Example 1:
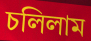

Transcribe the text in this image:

চলিলাম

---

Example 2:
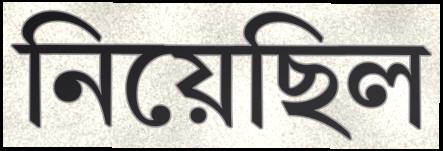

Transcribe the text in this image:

নিয়েছিল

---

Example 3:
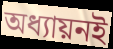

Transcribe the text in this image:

অধ্যায়নই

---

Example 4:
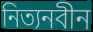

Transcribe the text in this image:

নিত্যনবীন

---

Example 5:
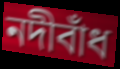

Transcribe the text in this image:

নদীবাঁধ